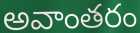
అవాంతరం